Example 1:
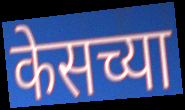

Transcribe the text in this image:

केसच्या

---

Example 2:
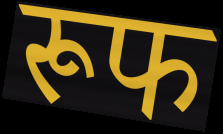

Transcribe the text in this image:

रूफ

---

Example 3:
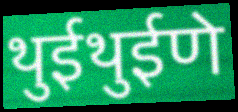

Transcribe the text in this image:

थुईथुईणे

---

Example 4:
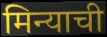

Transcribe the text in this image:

मिन्याची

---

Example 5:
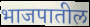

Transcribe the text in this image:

भाजपातील